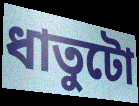
ধাতুটো